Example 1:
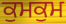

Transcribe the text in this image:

ਕੁਮਕੁਮ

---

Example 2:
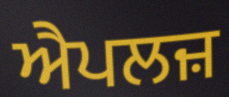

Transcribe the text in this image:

ਐਪਲਜ਼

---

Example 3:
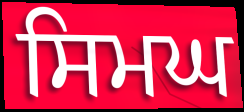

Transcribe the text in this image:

ਸਿਮਘ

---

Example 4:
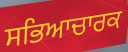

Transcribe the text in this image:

ਸਭਿਆਚਾਰਕ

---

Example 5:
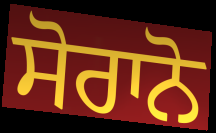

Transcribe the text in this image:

ਸੋਰਾਨੋ